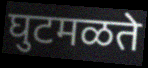
घुटमळते